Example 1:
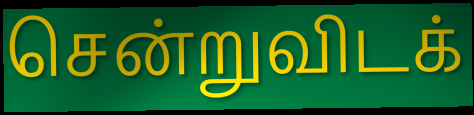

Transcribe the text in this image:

சென்றுவிடக்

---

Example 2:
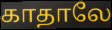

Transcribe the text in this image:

காதாலே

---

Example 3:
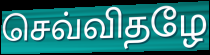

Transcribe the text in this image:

செவ்விதழே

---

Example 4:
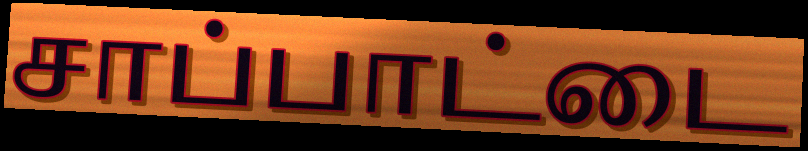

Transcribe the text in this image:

சாப்பாட்டை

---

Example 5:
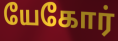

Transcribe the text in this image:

யேகோர்